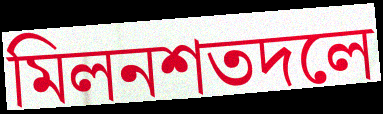
মিলনশতদলে